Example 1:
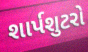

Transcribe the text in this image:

શાર્પશુટરો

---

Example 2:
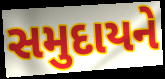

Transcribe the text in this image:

સમુદાયને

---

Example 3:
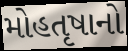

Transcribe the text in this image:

મોહતૃષાનો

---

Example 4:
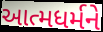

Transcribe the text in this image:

આત્મધર્મને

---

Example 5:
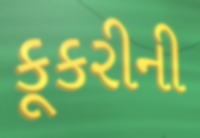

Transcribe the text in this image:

કૂકરીની